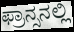
ಫ್ರಾನ್ಸನಲ್ಲಿ